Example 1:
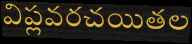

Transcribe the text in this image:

విప్లవరచయితల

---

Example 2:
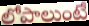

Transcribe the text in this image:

లోపాలుంటే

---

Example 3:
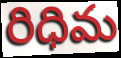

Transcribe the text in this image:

రిధిమ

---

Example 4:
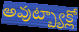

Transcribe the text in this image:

అవుట్బ్యాక్లో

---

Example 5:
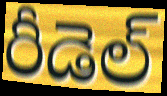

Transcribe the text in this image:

రీడెల్